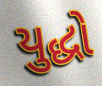
યુદ્ધો